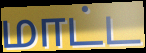
மாட்ட